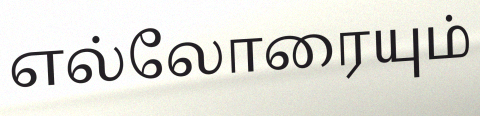
எல்லோரையும்